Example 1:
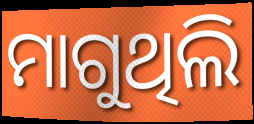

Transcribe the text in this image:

ମାଗୁଥିଲି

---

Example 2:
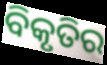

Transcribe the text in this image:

ବିକୃତିର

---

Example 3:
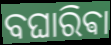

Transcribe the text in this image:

ବଘାରିଵା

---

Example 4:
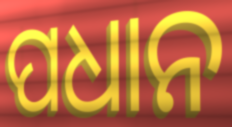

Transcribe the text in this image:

ପଧାନ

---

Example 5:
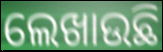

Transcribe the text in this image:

ଲେଖାଉଛି